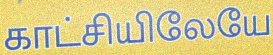
காட்சியிலேயே